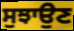
ਸੁਝਾਉਣ